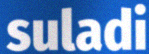
suladi